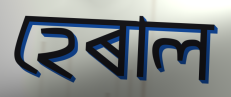
হেৰাল